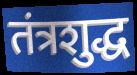
तंत्रशुद्ध